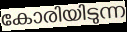
കോരിയിടുന്ന